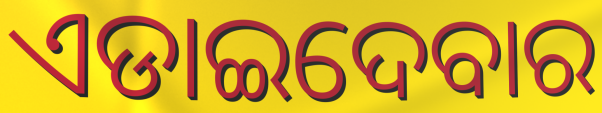
ଏଡାଇଦେବାର